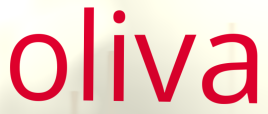
oliva